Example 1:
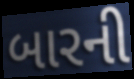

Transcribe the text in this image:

બારની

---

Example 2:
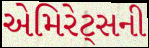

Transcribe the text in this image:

એમિરેટ્સની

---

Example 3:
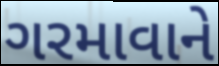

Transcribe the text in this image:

ગરમાવાને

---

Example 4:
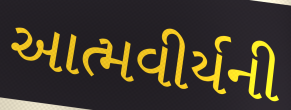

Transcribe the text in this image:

આત્મવીર્યની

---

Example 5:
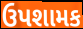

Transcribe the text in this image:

ઉપશામક